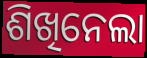
ଶିଖିନେଲା